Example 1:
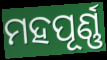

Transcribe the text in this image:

ମହପୂର୍ଣ୍ଣ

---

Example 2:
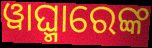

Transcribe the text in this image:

ୱାଘ୍ମାରେଙ୍କ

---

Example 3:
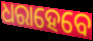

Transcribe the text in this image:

ଧରାହେବେ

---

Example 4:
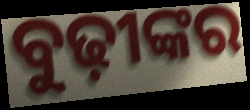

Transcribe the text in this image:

ବୁଢ଼ୀଙ୍କର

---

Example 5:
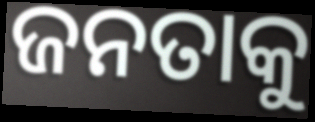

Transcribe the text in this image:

ଜନତାକୁ